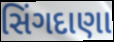
સિંગદાણા